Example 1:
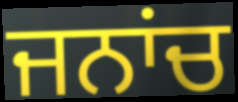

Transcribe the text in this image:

ਜਨਾਂਚ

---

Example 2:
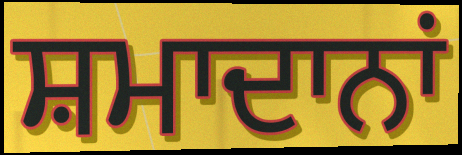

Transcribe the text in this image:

ਸ਼ਮਾਦਾਨਾਂ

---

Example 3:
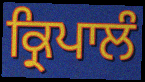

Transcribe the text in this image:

ਕ੍ਰਿਪਾਲੰ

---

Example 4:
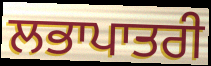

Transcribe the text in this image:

ਲਭਾਪਾਤਰੀ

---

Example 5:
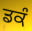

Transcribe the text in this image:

ਡਕੰ